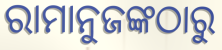
ରାମାନୁଜଙ୍କଠାରୁ